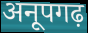
अनूपगढ़